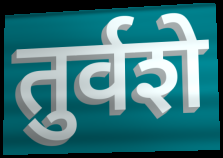
तुर्वशे